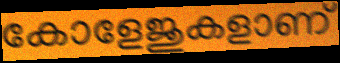
കോളേജുകളാണ്